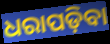
ଧରାପଡ଼ିବା